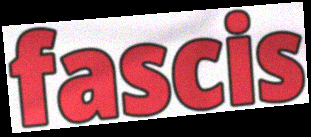
fascis